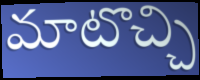
మాటొచ్చి